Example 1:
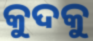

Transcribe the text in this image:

କୁଦକୁ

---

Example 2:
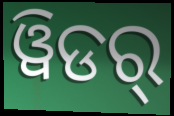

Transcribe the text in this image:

ୱିଡର୍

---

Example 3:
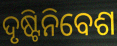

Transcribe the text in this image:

ଦୃଷ୍ଟିନିବେଶ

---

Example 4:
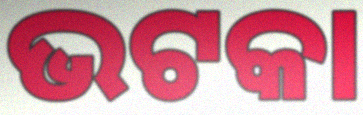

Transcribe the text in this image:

ଭଟକା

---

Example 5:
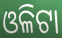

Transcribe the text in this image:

ଓଳିଟା